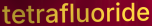
tetrafluoride